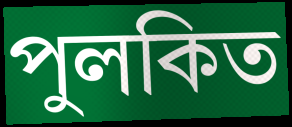
পুলকিত